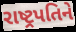
રાષ્ટ્રપતિને